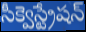
సీక్వెస్ట్రేషన్